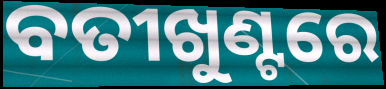
ବତୀଖୁଣ୍ଟରେ